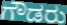
ಗೌಡರು